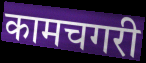
कामचगरी